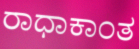
ರಾಧಾಕಾಂತ